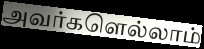
அவர்களெல்லாம்